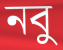
নবু